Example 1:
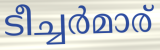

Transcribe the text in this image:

ടീച്ചർമാര്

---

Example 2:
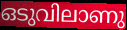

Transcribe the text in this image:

ഒടുവിലാണു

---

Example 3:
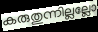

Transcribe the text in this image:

കരുതുന്നില്ലല്ലോ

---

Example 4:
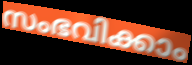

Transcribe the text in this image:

സംഭവിക്കാം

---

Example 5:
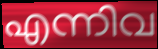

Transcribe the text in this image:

എന്നിവ